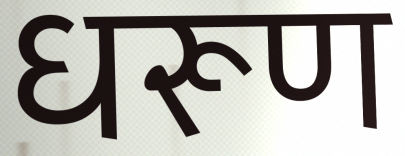
धरूण